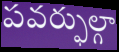
పవర్ఫుల్గా